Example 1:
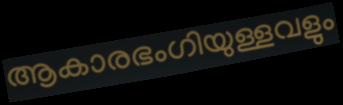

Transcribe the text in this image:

ആകാരഭംഗിയുള്ളവളും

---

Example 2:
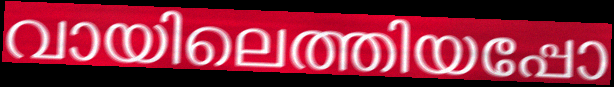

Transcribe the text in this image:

വായിലെത്തിയപ്പോ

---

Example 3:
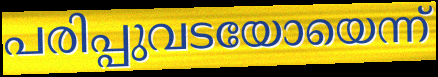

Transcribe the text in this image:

പരിപ്പുവടയോയെന്ന്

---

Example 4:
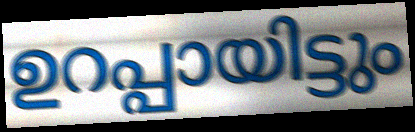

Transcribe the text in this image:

ഉറപ്പായിട്ടും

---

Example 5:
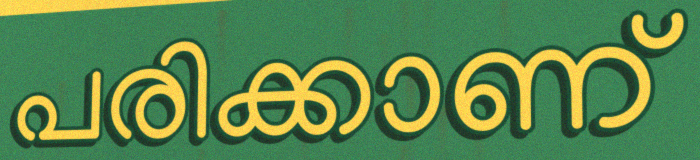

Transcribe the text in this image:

പരിക്കാണ്